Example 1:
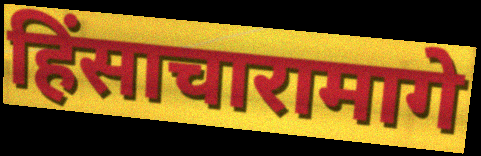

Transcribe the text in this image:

हिंसाचारामागे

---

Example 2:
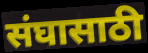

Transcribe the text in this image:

संघासाठी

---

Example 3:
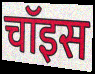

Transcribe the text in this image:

चॉइस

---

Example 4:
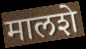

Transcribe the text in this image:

मालशे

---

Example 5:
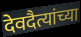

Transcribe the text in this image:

देवदैत्यांच्या